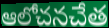
ఆలోచనచేత